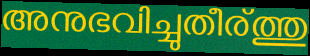
അനുഭവിച്ചുതീര്ത്തു